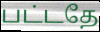
பட்டதே